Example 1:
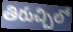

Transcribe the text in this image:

తిరుచ్చిలో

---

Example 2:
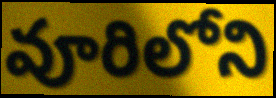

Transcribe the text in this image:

వూరిలోని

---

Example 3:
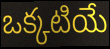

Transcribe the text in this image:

ఒక్కటియే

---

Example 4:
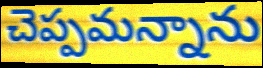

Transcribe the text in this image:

చెప్పమన్నాను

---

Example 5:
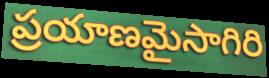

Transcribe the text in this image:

ప్రయాణమైసాగిరి